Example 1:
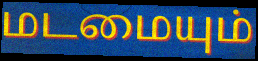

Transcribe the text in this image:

மடமையும்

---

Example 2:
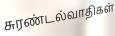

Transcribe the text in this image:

சுரண்டல்வாதிகள்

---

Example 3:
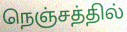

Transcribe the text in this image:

நெஞ்சத்தில்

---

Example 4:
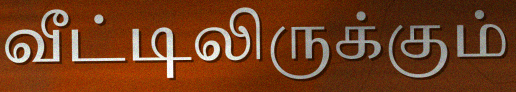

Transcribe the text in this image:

வீட்டிலிருக்கும்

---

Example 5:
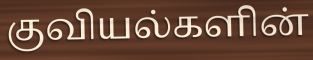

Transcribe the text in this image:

குவியல்களின்